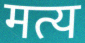
मत्य